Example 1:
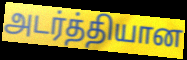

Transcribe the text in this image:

அடர்த்தியான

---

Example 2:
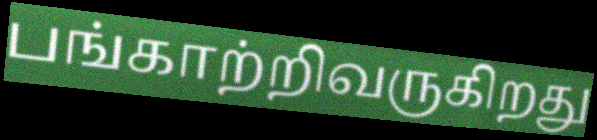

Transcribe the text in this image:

பங்காற்றிவருகிறது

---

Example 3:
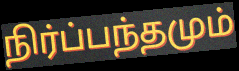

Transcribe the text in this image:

நிர்ப்பந்தமும்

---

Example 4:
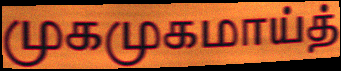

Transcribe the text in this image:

முகமுகமாய்த்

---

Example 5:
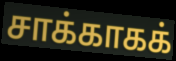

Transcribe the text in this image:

சாக்காகக்